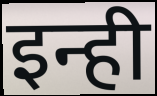
इन्ही